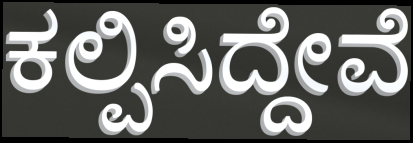
ಕಲ್ಪಿಸಿದ್ದೇವೆ